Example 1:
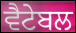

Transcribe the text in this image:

ਵੈਟੇਬਲ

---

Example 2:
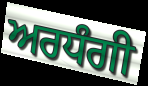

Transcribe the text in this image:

ਅਰਧੰਗੀ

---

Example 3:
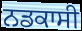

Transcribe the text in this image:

ਨਡਕਾਸੀ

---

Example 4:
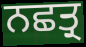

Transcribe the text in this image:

ਨਛਤ੍ਰ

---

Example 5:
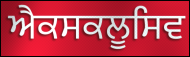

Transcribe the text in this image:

ਐਕਸਕਲੂਸਿਵ